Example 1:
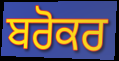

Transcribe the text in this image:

ਬਰੋਕਰ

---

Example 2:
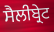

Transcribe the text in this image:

ਸੈਲੀਬ੍ਰੇਟ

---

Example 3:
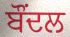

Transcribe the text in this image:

ਬੌਂਦਲ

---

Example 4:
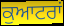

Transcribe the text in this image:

ਕੁਆਟਰਾਂ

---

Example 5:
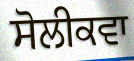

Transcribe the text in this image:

ਸੋਲੀਕਵਾ